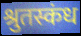
श्रुतस्कंध